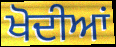
ਖੋਦੀਆਂ